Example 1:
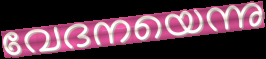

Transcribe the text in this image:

വേദനയെന്നു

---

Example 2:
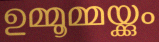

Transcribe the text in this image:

ഉമ്മൂമ്മയ്ക്കും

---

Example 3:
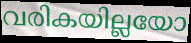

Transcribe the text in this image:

വരികയില്ലയോ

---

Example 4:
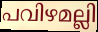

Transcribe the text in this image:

പവിഴമല്ലി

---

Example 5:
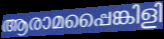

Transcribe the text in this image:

ആരാമപ്പൈങ്കിളി